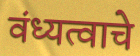
वंध्यत्वाचे